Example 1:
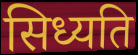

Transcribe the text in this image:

सिध्यति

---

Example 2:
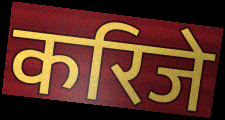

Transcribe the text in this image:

करिजे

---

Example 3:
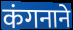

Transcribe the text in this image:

कंगनाने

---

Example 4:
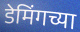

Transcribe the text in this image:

डेमिंगच्या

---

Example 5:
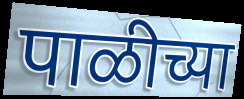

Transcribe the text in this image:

पाळीच्या